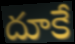
దూకే